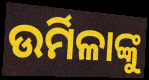
ଉର୍ମିଳାଙ୍କୁ